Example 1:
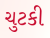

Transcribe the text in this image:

ચુટકી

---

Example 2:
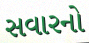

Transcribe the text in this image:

સવારનો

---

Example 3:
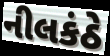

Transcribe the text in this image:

નીલકંઠે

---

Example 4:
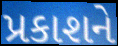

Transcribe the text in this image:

પ્રકાશને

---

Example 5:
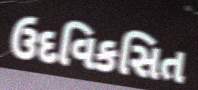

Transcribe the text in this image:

ઉદવિકસિત